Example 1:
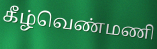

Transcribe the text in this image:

கீழ்வெண்மணி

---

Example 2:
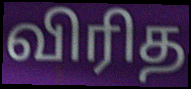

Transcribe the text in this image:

விரித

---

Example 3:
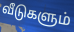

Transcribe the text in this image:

வீடுகளும்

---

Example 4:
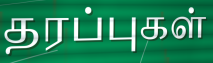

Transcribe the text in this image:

தரப்புகள்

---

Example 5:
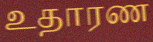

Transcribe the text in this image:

உதாரண